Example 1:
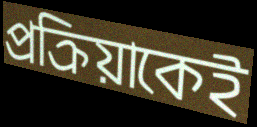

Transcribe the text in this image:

প্রক্রিয়াকেই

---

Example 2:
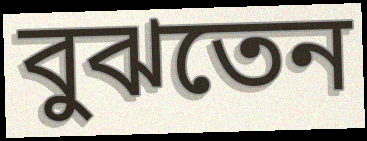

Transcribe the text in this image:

বুঝতেন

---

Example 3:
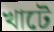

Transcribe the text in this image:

খাটে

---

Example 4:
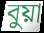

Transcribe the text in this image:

বুয়া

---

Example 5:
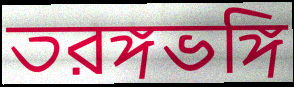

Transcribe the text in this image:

তরঙ্গভঙ্গি